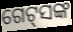
ଗେଟ୍‌ସଙ୍କ